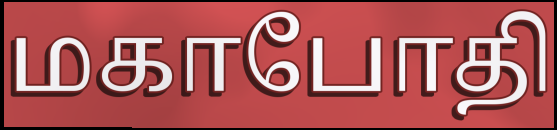
மகாபோதி